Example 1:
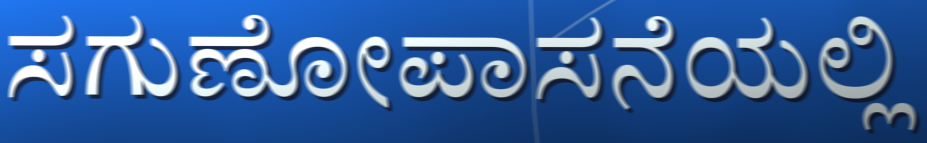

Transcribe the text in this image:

ಸಗುಣೋಪಾಸನೆಯಲ್ಲಿ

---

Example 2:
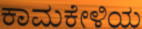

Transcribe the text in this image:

ಕಾಮಕೇಳಿಯ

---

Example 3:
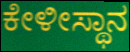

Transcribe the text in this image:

ಕೇಳೀಸ್ಥಾನ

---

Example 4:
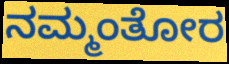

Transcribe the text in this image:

ನಮ್ಮಂತೋರ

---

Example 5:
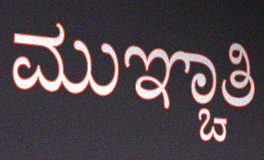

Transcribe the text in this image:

ಮುಞ್ಚಾತಿ